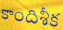
కాందిశీక